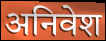
अनिवेश